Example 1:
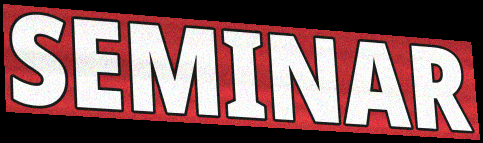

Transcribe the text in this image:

SEMINAR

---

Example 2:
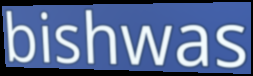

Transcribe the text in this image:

bishwas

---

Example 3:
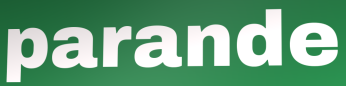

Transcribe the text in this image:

parande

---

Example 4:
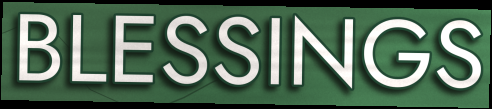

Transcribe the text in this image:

BLESSINGS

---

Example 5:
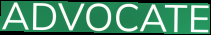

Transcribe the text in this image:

ADVOCATE